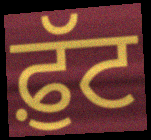
ਫ਼ੁੱਟ